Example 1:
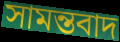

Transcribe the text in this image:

সামন্তবাদ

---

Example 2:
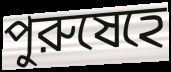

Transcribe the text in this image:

পুৰুষেহে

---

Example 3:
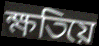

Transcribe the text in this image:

ক্ষতিয়ে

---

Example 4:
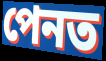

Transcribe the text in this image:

পেনত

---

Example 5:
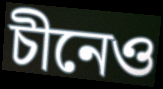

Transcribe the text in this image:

চীনেও